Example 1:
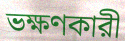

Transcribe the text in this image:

ভক্ষণকারী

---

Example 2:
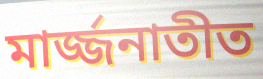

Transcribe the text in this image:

মার্জ্জনাতীত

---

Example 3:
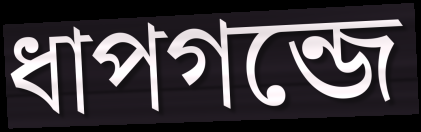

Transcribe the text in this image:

ধাপগন্জে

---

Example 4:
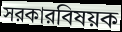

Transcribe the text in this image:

সরকারবিষয়ক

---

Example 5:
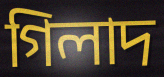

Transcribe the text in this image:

গিলাদ